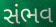
સંભવ